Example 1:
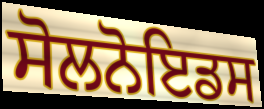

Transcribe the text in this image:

ਸੋਲਨੋਇਡਸ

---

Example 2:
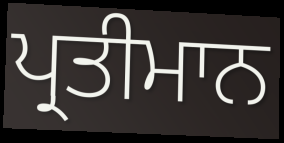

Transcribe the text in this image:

ਪ੍ਰਤੀਮਾਨ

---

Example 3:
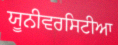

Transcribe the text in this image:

ਯੂਨੀਵਰਸਿਟੀਆ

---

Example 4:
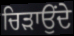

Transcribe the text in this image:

ਚਿੜਾਉਂਦੇ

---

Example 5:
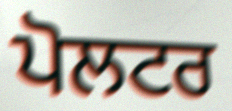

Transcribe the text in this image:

ਪੋਲਟਰ